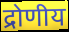
द्रोणीय